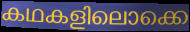
കഥകളിലൊക്കെ